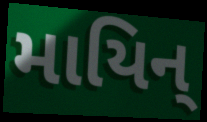
માયિન્